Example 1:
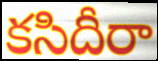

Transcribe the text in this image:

కసిదీరా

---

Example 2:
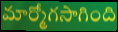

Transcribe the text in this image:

మార్మోగసాగింది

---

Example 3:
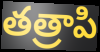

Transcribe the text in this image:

తత్రాపి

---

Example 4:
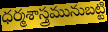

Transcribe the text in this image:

ధర్మశాస్త్రమునుబట్టి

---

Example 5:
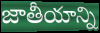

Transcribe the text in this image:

జాతీయాన్ని